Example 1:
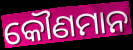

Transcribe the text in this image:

କୌଣମାନ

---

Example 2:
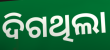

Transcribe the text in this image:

ଦିଗଥିଲା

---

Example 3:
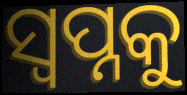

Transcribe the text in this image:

ସ୍ୱପ୍ନକୁ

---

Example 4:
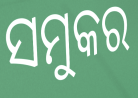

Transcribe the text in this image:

ସମୁକର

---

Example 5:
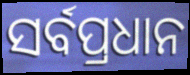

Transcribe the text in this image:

ସର୍ବପ୍ରଧାନ